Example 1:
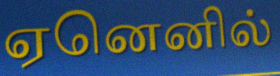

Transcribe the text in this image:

ஏனெனில்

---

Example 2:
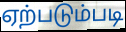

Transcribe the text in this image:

ஏற்படும்படி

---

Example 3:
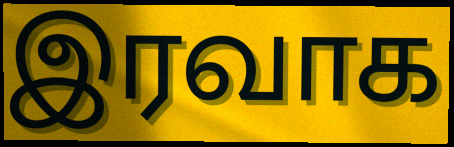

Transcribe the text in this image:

இரவாக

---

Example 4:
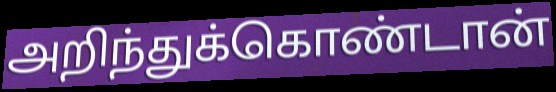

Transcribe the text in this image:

அறிந்துக்கொண்டான்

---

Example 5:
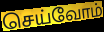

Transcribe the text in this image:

செய்வோம்